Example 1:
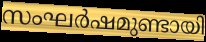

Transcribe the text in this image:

സംഘർഷമുണ്ടായി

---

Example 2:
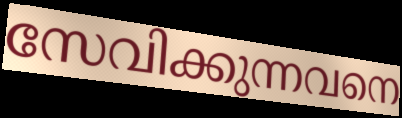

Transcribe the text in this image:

സേവിക്കുന്നവനെ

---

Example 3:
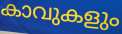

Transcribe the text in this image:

കാവുകളും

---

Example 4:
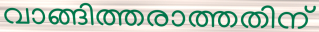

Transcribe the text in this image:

വാങ്ങിത്തരാത്തതിന്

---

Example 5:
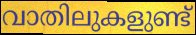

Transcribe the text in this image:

വാതിലുകളുണ്ട്